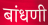
बांधणी